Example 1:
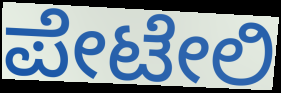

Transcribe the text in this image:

ಪೇಟೇಲಿ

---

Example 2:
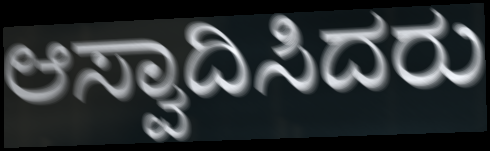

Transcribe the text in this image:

ಆಸ್ವಾದಿಸಿದರು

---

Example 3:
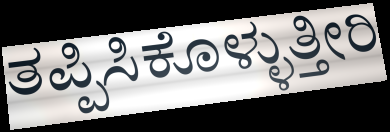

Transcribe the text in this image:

ತಪ್ಪಿಸಿಕೊಳ್ಳುತ್ತೀರಿ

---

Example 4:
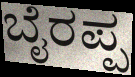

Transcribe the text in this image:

ಬೈರಪ್ಪ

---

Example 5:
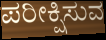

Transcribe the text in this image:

ಪರೀಕ್ಷಿಸುವ